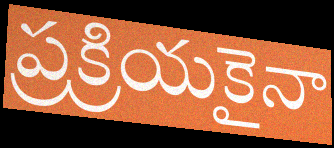
ప్రక్రియకైనా